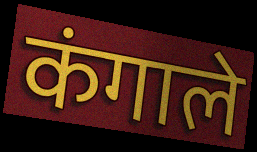
कंगाले